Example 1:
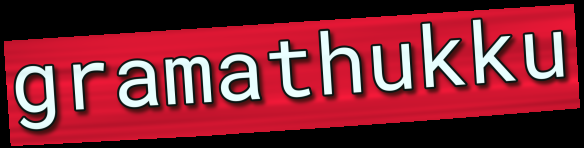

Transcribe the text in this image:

gramathukku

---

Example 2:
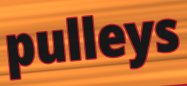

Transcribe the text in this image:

pulleys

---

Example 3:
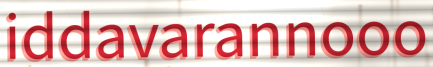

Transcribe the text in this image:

iddavarannooo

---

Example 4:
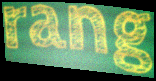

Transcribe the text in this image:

rang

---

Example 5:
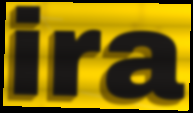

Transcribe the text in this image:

ira